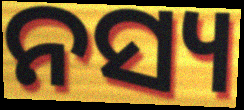
ନସ୍ୟ